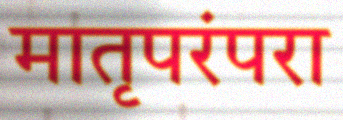
मातृपरंपरा